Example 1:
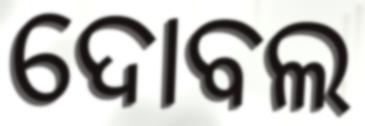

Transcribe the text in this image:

ଦୋବଲ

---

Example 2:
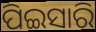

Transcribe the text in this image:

ପିଇସାରି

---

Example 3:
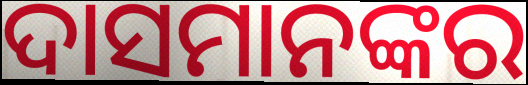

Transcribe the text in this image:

ଦାସମାନଙ୍କର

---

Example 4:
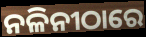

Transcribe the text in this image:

ନଳିନୀଠାରେ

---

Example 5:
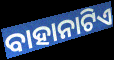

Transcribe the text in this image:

ବାହାନାଟିଏ